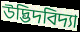
উদ্ভিদবিদ্যা